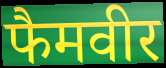
फैमवीर